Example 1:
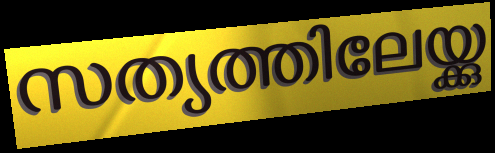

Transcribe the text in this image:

സത്യത്തിലേയ്ക്കു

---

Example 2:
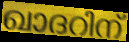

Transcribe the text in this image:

ഖാദറിന്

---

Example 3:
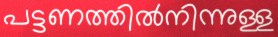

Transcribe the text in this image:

പട്ടണത്തിൽനിന്നുള്ള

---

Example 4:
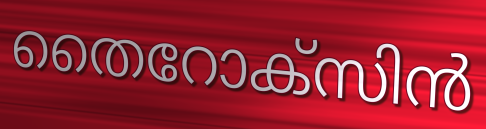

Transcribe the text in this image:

തൈറോക്സിൻ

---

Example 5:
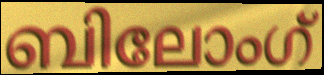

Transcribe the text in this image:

ബിലോംഗ്